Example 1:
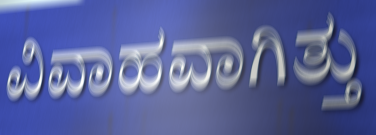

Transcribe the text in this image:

ವಿವಾಹವಾಗಿತ್ತು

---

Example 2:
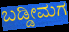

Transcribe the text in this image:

ಬಡ್ಡೀಮಗ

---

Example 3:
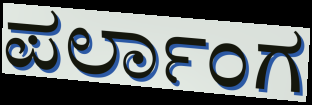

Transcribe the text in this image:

ಪರ್ಲಾಂಗ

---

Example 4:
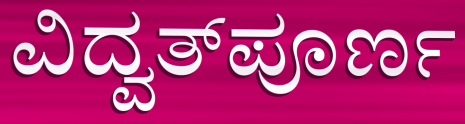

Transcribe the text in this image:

ವಿದ್ವತ್‌ಪೂರ್ಣ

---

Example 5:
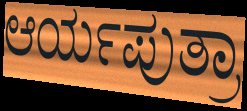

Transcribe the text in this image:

ಆರ್ಯಪುತ್ರಾ